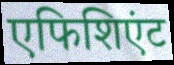
एफिशिएंट